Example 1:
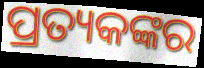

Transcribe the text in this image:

ପ୍ରତ୍ୟକଙ୍କର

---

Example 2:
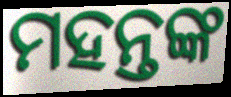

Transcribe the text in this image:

ମହନ୍ତଙ୍କ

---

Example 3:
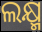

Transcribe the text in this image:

ଲକ୍ଷ୍ମ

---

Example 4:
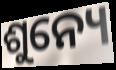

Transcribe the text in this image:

ଶୁନ୍ୟେ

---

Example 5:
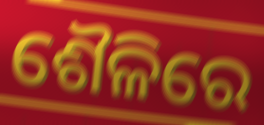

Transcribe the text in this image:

ଶୈଳିରେ